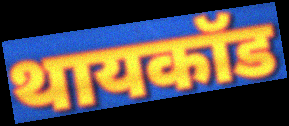
थायकॉड